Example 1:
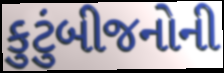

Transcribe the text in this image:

કુટુંબીજનોની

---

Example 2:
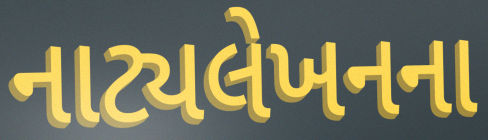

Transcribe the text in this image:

નાટ્યલેખનના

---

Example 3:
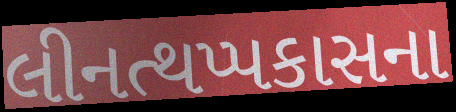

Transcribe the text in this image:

લીનત્થપ્પકાસના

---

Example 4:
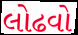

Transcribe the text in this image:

લોઢવો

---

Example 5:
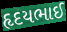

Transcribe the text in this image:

હૃદયભાઈ